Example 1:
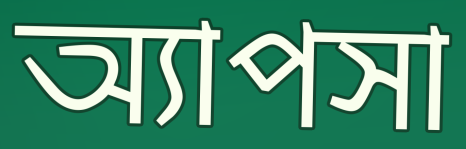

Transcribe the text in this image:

অ্যাপসা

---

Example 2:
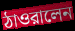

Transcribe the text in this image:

ঠাওরালেন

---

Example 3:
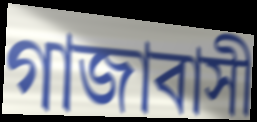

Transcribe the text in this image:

গাজাবাসী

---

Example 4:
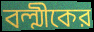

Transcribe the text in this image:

বল্মীকের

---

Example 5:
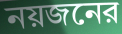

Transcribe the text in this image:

নয়জনের